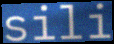
sili